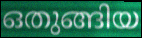
ഒതുങ്ങിയ